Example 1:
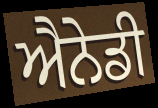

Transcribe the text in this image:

ਐਨੇਡੀ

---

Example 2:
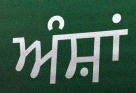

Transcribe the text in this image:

ਅੰਸ਼ਾਂ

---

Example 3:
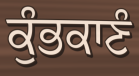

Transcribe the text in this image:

ਕੁੰਭਕਾਣੰ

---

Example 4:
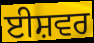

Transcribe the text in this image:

ਈਸ਼ਵਰ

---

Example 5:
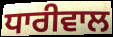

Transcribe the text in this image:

ਧਾਰੀਵਾਲ